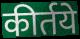
कीर्तये